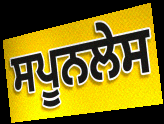
ਸਪੂਨਲੇਸ